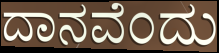
ದಾನವೆಂದು